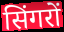
सिंगरों